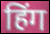
हिंग